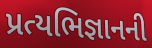
પ્રત્યભિજ્ઞાનની